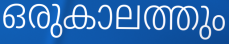
ഒരുകാലത്തും